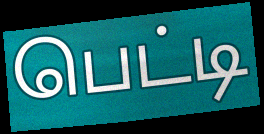
பெட்டி